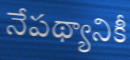
నేపథ్యానికీ